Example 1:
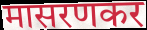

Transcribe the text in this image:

मासरणकर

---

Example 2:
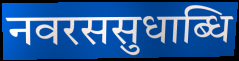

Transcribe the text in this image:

नवरससुधाब्धि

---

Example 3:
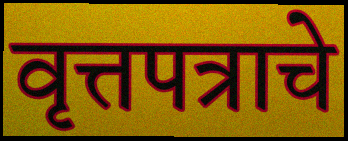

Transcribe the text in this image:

वृत्तपत्राचे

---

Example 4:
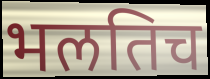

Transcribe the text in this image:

भलतिच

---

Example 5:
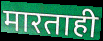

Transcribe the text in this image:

मारताही